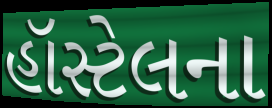
હૉસ્ટેલના